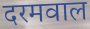
दरमवाल